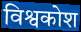
विश्वकोश